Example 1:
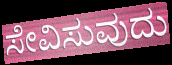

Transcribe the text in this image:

ಸೇವಿಸುವುದು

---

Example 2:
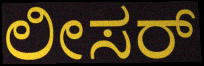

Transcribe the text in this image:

ಲೀಸರ್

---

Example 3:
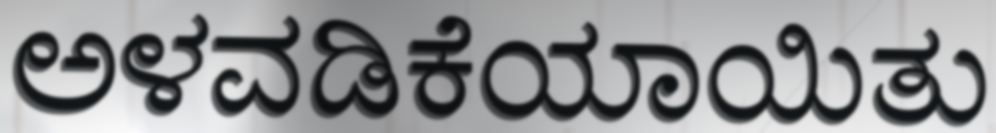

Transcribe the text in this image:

ಅಳವಡಿಕೆಯಾಯಿತು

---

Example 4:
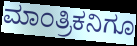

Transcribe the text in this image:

ಮಾಂತ್ರಿಕನಿಗೂ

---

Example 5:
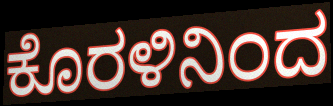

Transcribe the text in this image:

ಕೊರಳಿನಿಂದ